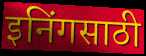
इनिंगसाठी